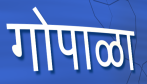
गोपाळा